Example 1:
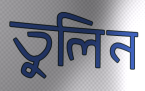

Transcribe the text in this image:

তুলিন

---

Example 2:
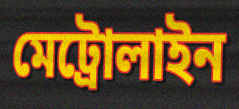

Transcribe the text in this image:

মেট্রোলাইন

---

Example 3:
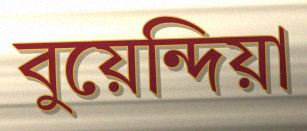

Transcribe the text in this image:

বুয়েন্দিয়া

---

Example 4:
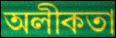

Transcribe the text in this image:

অলীকতা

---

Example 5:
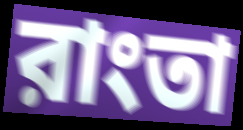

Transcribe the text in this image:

রাংতা